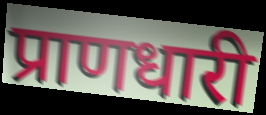
प्राणधारी